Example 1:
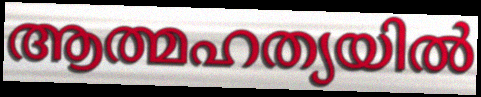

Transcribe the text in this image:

ആത്മഹത്യയിൽ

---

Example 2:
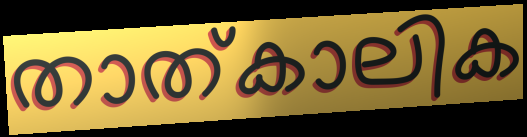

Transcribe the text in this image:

താത്കാലിക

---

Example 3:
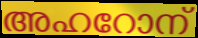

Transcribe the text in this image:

അഹറോന്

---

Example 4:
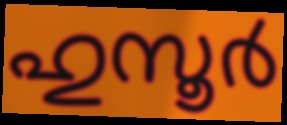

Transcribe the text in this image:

ഹുസൂർ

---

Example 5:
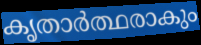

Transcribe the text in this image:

കൃതാർത്ഥരാകും